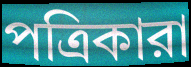
পত্রিকারা